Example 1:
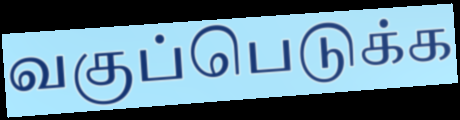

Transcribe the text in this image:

வகுப்பெடுக்க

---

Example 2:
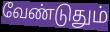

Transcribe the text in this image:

வேண்டுதும்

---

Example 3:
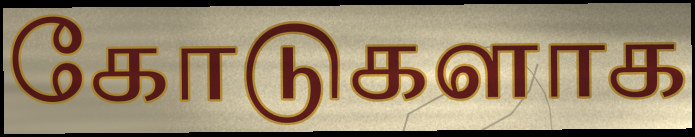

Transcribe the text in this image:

கோடுகளாக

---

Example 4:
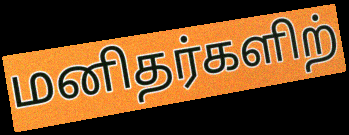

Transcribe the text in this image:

மனிதர்களிற்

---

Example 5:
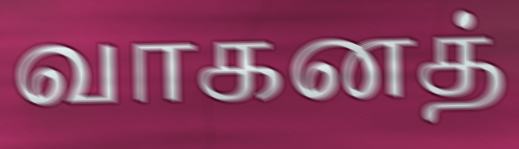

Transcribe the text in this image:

வாகனத்